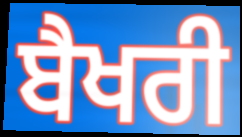
ਬੈਖਰੀ